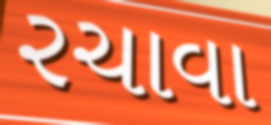
રચાવા